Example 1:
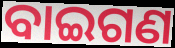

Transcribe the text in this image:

ବାଇଗଣ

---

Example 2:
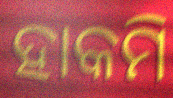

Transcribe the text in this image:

ହାକମି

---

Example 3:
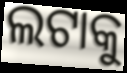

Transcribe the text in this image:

ଲଟାକୁ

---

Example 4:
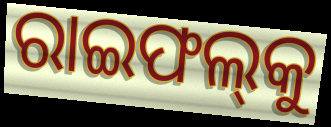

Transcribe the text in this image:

ରାଇଫଲ୍‍କୁ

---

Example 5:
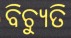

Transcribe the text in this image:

ବିଚ୍ୟୁତି